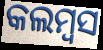
କଲମ୍ବସ